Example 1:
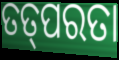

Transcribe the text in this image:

ତତ୍‌ପରତା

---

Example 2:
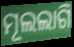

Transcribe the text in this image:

ମୂଲଲାଗି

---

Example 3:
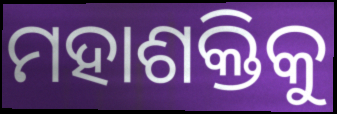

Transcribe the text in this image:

ମହାଶକ୍ତିକୁ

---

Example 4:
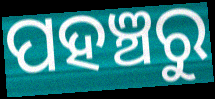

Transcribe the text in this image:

ପହଞ୍ଚରୁ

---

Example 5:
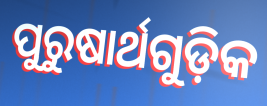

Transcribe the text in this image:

ପୁରୁଷାର୍ଥଗୁଡ଼ିକ